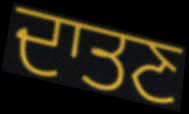
ਦਾਤਣ